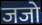
जजो